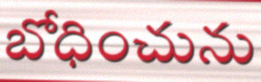
బోధించును